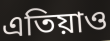
এতিয়াও